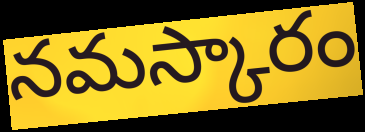
నమస్కారం